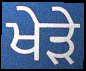
ਖੇੜੇ